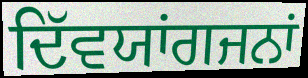
ਦਿੱਵਯਾਂਗਜਨਾਂ